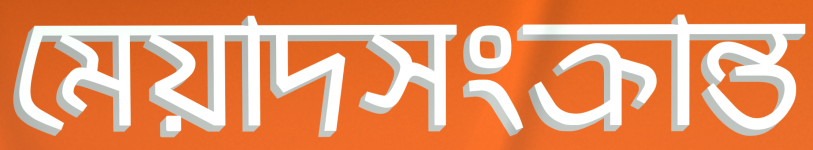
মেয়াদসংক্রান্ত